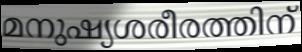
മനുഷ്യശരീരത്തിന്